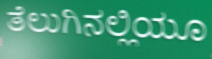
ತೆಲುಗಿನಲ್ಲಿಯೂ